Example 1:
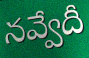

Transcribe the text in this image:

నవ్వేదీ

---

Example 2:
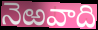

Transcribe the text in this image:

నెఱవాది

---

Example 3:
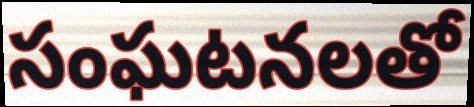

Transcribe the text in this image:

సంఘటనలతో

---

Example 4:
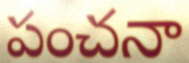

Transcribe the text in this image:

పంచనా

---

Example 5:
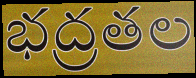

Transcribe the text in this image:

భద్రతల